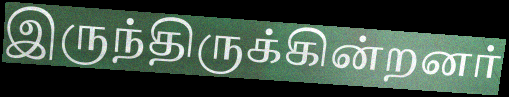
இருந்திருக்கின்றனர்